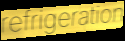
refrigeration